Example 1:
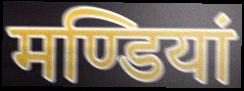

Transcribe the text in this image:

मण्डियां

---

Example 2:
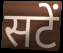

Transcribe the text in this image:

सटें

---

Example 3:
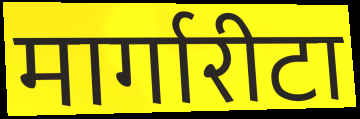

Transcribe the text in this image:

मार्गारीटा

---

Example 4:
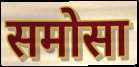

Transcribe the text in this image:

समोसा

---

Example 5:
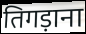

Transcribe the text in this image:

तिगड़ाना